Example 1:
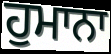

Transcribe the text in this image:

ਹੁਮਾਨਾ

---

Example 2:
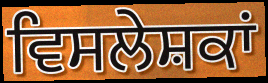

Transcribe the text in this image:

ਵਿਸਲੇਸ਼ਕਾਂ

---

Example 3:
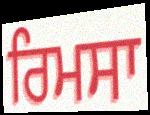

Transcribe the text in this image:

ਰਿਮਸਾ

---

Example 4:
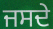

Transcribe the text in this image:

ਜਸਦੇ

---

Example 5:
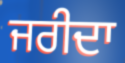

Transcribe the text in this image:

ਜਰੀਦਾ